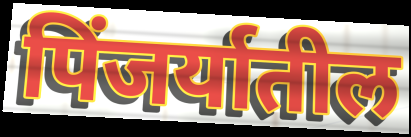
पिंजर्यातील